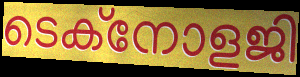
ടെക്നോളജി